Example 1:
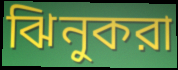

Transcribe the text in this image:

ঝিনুকরা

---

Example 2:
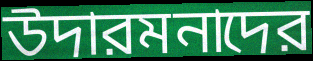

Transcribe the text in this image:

উদারমনাদের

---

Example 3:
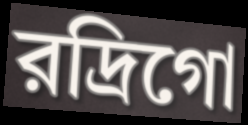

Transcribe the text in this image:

রদ্রিগো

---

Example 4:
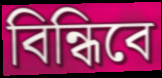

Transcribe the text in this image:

বিন্ধিবে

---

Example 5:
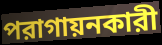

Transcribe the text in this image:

পরাগায়নকারী